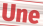
Une